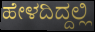
ಹೇಳದಿದ್ದಲ್ಲಿ